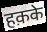
हक़के